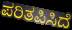
ಪರಿತಪಿಸಿದೆ